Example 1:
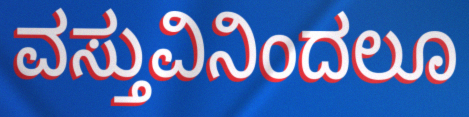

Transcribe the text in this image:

ವಸ್ತುವಿನಿಂದಲೂ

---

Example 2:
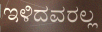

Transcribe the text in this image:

ಇಳಿದವರಲ್ಲ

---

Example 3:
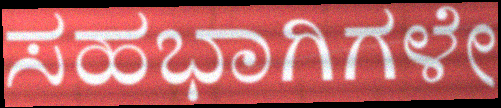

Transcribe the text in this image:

ಸಹಭಾಗಿಗಳೇ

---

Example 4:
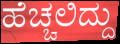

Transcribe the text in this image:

ಹೆಚ್ಚಲಿದ್ದು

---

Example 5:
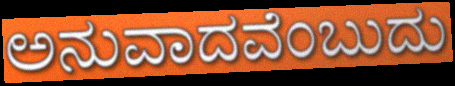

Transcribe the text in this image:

ಅನುವಾದವೆಂಬುದು